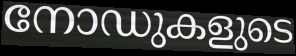
നോഡുകളുടെ